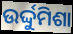
ଉର୍ଦ୍ଦୁମିଶା